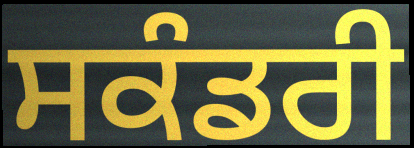
ਸਕੰਡਰੀ